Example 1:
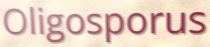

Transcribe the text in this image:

Oligosporus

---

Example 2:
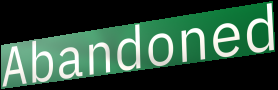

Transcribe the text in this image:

Abandoned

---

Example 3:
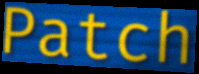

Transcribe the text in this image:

Patch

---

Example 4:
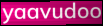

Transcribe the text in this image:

yaavudoo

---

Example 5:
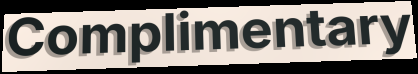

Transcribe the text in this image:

Complimentary